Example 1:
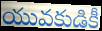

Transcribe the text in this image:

యువకుడికీ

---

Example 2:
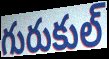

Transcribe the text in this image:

గురుకుల్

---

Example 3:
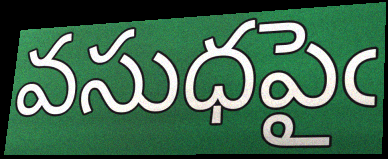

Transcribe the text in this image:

వసుధపైఁ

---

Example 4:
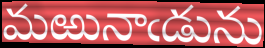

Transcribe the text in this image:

మఱునాఁడును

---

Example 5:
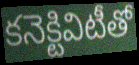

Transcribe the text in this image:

కనెక్టివిటీతో